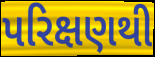
પરિક્ષણથી